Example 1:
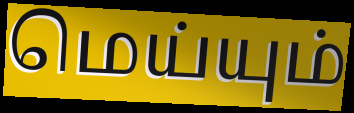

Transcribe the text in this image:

மெய்யும்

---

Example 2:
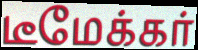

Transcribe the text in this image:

டீமேக்கர்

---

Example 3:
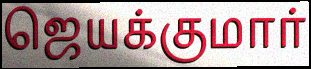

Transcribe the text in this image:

ஜெயக்குமார்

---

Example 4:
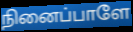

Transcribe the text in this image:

நினைப்பாளே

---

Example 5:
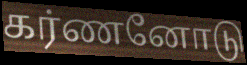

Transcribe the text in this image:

கர்ணனோடு